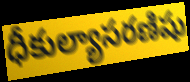
ధీకుల్యాసరణిషు